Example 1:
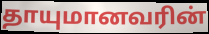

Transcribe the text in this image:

தாயுமானவரின்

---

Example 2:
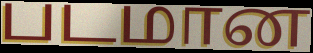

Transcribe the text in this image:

படமான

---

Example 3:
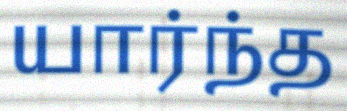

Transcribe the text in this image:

யார்ந்த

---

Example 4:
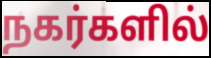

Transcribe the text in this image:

நகர்களில்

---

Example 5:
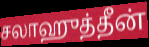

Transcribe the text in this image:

சலாஹுத்தீன்